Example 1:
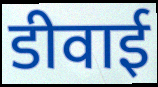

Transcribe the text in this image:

डीवाई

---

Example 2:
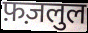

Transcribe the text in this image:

फ़ज़लुल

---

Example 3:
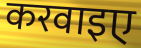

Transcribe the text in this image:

करवाइए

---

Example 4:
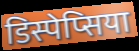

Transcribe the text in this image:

डिस्पेप्सिया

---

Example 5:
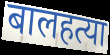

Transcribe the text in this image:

बालहत्या